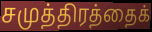
சமுத்திரத்தைக்